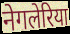
नेगलेरिया